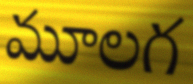
మూలగ